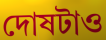
দোষটাও